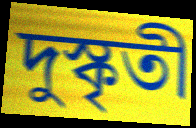
দুস্কৃতী